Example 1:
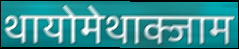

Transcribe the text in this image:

थायोमेथाक्जाम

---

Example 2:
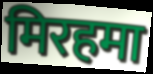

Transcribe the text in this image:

मिरहमा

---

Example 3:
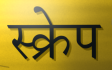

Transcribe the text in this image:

स्क्रेप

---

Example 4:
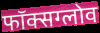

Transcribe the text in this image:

फॉक्सग्लोव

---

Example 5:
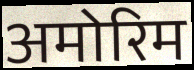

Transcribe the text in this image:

अमोरिम